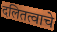
दलितत्वाचे